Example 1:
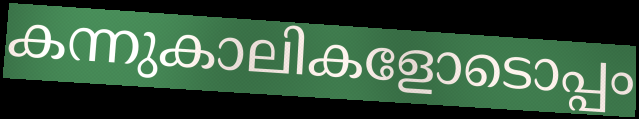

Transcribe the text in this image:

കന്നുകാലികളോടൊപ്പം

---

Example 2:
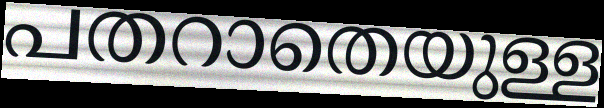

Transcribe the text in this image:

പതറാതെയുള്ള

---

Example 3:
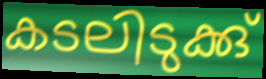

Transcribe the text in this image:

കടലിടുക്കു്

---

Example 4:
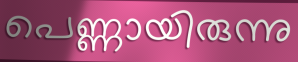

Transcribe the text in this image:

പെണ്ണായിരുന്നു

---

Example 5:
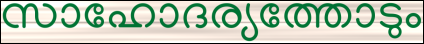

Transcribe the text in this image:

സാഹോദര്യത്തോടും